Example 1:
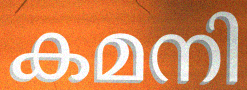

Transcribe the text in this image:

കമനി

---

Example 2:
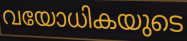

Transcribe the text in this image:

വയോധികയുടെ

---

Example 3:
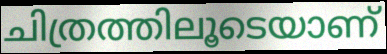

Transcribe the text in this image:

ചിത്രത്തിലൂടെയാണ്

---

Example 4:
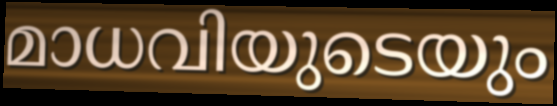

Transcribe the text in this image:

മാധവിയുടെയും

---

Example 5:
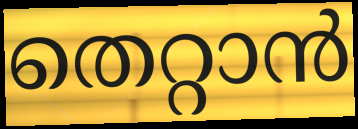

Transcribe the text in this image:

തെറ്റാൻ